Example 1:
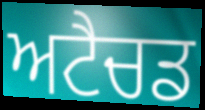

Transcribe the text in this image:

ਅਟੈਚਡ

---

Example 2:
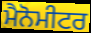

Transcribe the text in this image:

ਮੈਨੋਮੀਟਰ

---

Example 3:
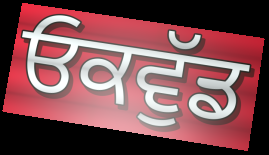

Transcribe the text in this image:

ਓਕਵੁੱਡ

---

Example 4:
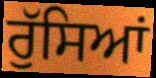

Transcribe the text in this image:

ਰੁੱਸਿਆਂ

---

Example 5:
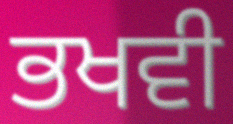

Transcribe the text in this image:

ਭਖਵੀ